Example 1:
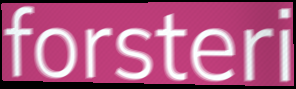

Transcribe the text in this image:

forsteri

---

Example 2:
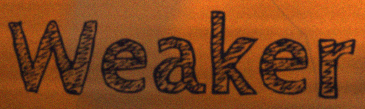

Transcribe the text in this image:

Weaker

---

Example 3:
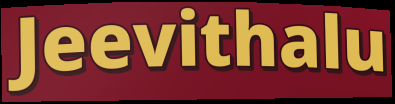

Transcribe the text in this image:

Jeevithalu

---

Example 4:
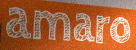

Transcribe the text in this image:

amaro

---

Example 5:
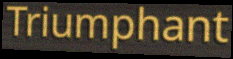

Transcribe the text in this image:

Triumphant